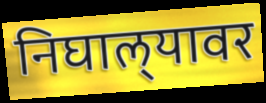
निघाल्यावर